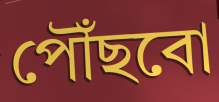
পৌঁছবো